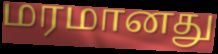
மரமானது